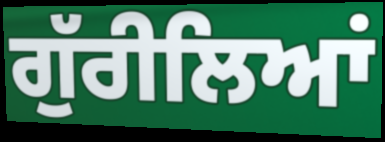
ਗੁੱਰੀਲਿਆਂ